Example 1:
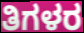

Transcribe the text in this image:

ತಿಗಳರ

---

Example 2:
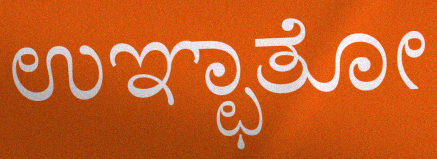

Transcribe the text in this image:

ಉಞ್ಛಾತೋ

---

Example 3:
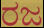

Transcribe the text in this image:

ರಜ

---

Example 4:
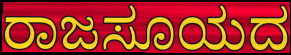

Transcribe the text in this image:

ರಾಜಸೂಯದ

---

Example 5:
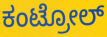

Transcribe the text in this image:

ಕಂಟ್ರೋಲ್